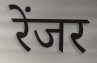
रेंजर